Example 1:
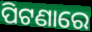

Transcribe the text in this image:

ପିଟଣାରେ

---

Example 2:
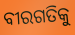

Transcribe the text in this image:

ବୀରଗତିକୁ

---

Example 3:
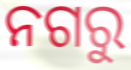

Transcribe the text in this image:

ନଗରୁ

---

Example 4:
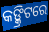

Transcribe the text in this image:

କଙ୍କ୍ରିଟରେ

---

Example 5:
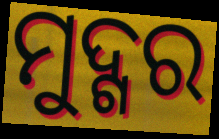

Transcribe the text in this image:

ମୁଦ୍ଗର